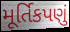
મૂર્તિકપણું